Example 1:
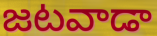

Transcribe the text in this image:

జటవాడా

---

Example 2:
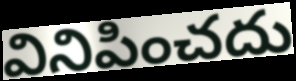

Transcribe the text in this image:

వినిపించదు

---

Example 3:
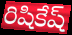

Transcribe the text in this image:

రిషికేష్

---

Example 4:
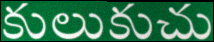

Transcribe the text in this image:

కులుకుచు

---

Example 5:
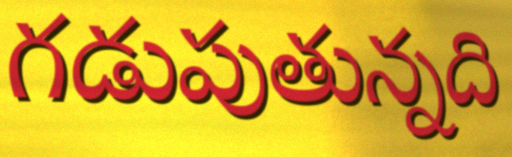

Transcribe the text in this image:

గడుపుతున్నది